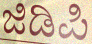
ಜಿಡಿಪಿ